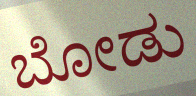
ಬೋಡು